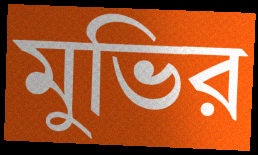
মুভির